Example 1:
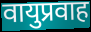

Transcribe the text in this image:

वायुप्रवाह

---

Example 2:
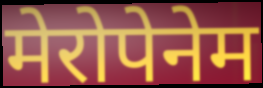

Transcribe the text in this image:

मेरोपेनेम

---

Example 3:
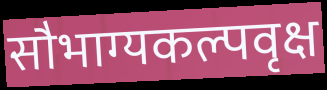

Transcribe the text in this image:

सौभाग्यकल्पवृक्ष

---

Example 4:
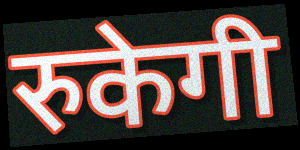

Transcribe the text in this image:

रुकेगी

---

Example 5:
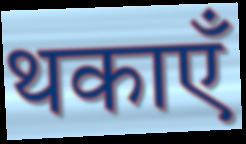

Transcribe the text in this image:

थकाएँ